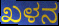
ಖಳನ